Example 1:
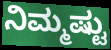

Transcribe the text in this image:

ನಿಮ್ಮಷ್ಟು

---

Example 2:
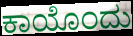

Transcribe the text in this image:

ಕಾಯೊಂದು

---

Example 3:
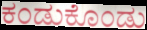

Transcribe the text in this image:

ಕಂಡುಕೊಂಡು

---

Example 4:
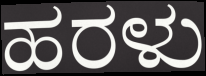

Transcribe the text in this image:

ಹರಳು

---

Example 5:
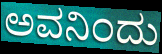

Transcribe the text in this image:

ಅವನಿಂದು